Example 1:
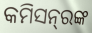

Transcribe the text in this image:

କମିସନ୍‍ରଙ୍କ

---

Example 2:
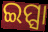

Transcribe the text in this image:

ଇପ୍ସା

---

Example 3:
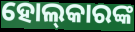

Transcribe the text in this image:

ହୋଲ୍‍କାରଙ୍କ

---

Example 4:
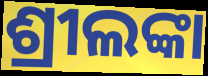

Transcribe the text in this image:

ଶ୍ରୀଲଙ୍କା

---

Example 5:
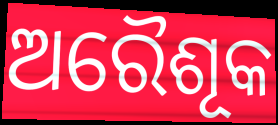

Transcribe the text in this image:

ଅରୈଶୂକ